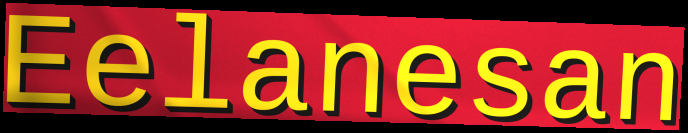
Eelanesan